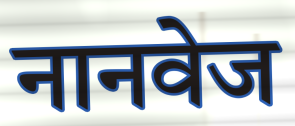
नानवेज